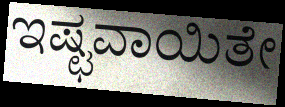
ಇಷ್ಟವಾಯಿತೇ